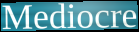
Mediocre